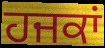
ਹਜਕਾਂ